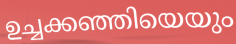
ഉച്ചക്കഞ്ഞിയെയും